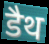
डैथ